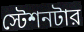
স্টেশনটার